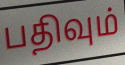
பதிவும்